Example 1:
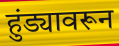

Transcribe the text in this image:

हुंड्यावरून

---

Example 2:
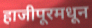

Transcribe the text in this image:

हाजीपूरमधून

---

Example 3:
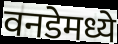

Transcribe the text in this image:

वनडेमध्ये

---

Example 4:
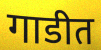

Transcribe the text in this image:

गाडीत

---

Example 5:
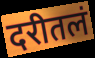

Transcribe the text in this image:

दरीतलं